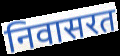
निवासरत